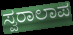
ಸ್ವರಾಲಾಪ